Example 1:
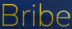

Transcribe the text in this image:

Bribe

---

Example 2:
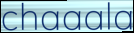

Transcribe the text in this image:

chaaala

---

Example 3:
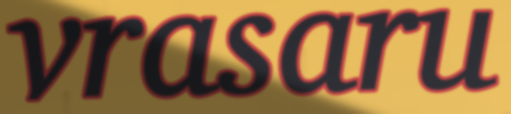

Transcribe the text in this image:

vrasaru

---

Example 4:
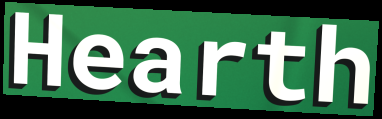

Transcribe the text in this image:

Hearth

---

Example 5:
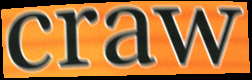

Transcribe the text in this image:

craw